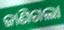
ଜାଣିଗଲା